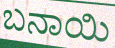
ಬನಾಯಿ